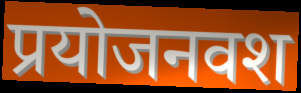
प्रयोजनवश